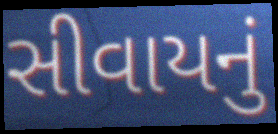
સીવાયનું